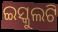
ଇସ୍କୁଲଟି